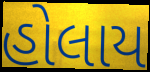
હોલાય